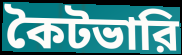
কৈটভারি